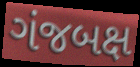
ગંજબક્ષ